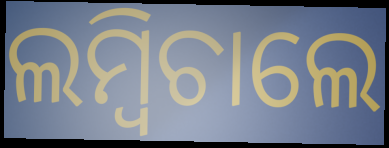
ଲମ୍ବିଚାଲେ